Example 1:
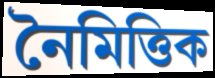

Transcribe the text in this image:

নৈমিত্তিক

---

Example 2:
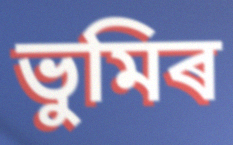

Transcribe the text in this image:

ভুমিৰ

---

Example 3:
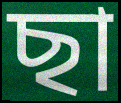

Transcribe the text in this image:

ছা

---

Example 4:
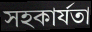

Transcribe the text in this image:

সহকাৰ্যতা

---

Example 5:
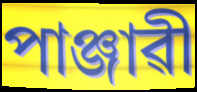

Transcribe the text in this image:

পাঞ্জাৱী